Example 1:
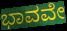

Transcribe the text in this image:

ಭಾವವೇ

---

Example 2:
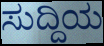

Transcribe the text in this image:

ಸುದ್ದಿಯ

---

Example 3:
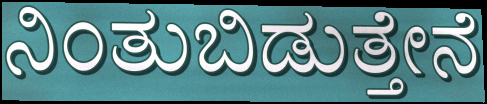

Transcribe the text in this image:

ನಿಂತುಬಿಡುತ್ತೇನೆ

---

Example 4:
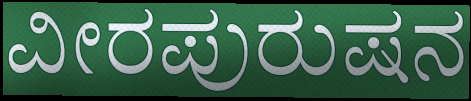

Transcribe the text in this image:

ವೀರಪುರುಷನ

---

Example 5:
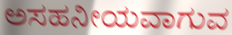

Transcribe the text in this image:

ಅಸಹನೀಯವಾಗುವ